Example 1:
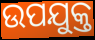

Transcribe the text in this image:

ଉପଯୁକ୍ତ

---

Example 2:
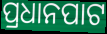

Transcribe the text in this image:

ପ୍ରଧାନପାଟ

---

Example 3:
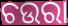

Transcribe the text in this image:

ଚଉରା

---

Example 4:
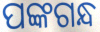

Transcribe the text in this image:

ପଙ୍କଗନ୍ଧ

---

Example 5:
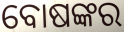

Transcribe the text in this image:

ବୋଷଙ୍କର